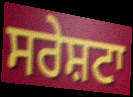
ਸਰੇਸ਼ਟਾ